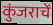
कुंजराचें